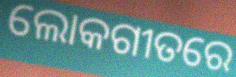
ଲୋକଗୀତରେ